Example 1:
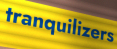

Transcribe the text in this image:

tranquilizers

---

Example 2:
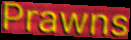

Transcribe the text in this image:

Prawns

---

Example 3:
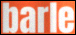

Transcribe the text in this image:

barle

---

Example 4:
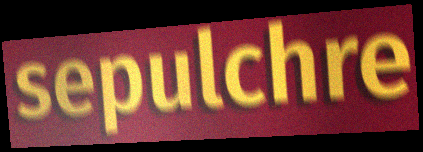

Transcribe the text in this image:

sepulchre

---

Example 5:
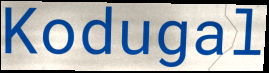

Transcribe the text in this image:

Kodugal